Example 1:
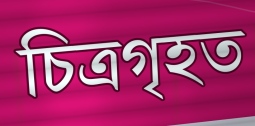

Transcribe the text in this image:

চিত্ৰগৃহত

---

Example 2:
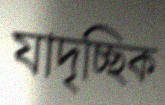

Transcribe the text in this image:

যাদৃচ্ছিক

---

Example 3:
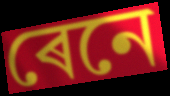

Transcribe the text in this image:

ৰেনে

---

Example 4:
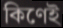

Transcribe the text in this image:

কিণেই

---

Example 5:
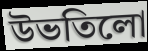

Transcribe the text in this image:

উভতিলো